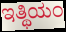
ಇತ್ಥಿಯಂ